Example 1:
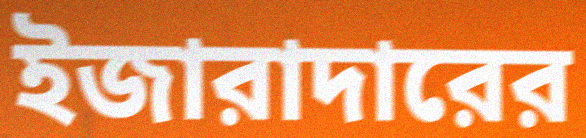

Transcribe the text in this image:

ইজারাদারের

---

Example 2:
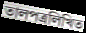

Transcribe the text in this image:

তালপত্রলিখিত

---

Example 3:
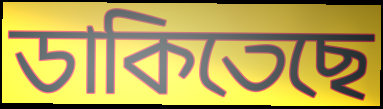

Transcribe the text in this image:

ডাকিতেছে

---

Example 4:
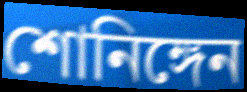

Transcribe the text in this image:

শোনিঙ্গেন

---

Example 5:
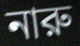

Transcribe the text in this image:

নারু